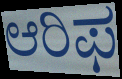
ಆರಿಫ